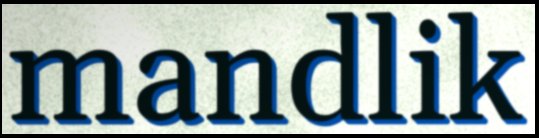
mandlik